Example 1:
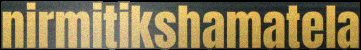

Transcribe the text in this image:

nirmitikshamatela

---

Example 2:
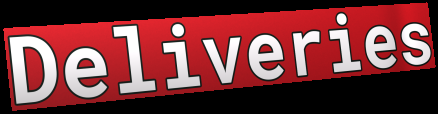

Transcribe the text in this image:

Deliveries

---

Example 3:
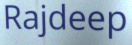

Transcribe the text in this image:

Rajdeep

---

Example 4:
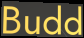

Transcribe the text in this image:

Budd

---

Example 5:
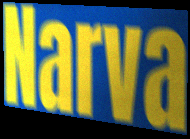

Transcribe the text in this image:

Narva